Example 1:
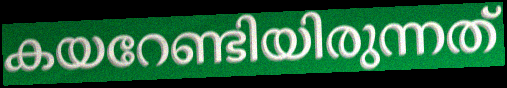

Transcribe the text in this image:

കയറേണ്ടിയിരുന്നത്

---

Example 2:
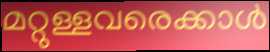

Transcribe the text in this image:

മറ്റുള്ളവരെക്കാൾ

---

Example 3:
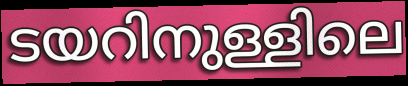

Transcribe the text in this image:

ടയറിനുള്ളിലെ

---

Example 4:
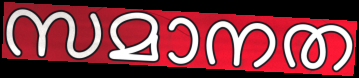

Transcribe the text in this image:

സമാനത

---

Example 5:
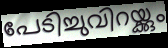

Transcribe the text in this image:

പേടിച്ചുവിറയ്ക്കും